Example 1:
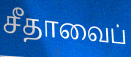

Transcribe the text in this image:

சீதாவைப்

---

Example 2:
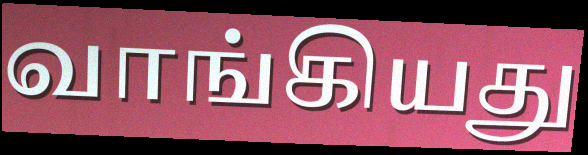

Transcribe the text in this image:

வாங்கியது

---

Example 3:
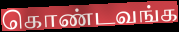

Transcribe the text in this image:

கொண்டவங்க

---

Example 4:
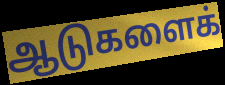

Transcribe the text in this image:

ஆடுகளைக்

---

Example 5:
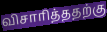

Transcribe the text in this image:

விசாரித்ததற்கு